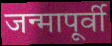
जन्मापूर्वी